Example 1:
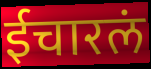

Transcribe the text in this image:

ईचारलं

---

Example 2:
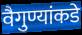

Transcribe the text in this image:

वैगुण्यांकडे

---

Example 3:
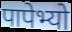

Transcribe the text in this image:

पापेभ्यो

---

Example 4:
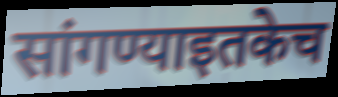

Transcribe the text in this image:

सांगण्याइतकेच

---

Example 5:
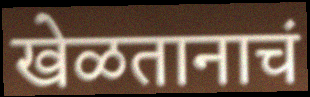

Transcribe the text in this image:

खेळतानाचं